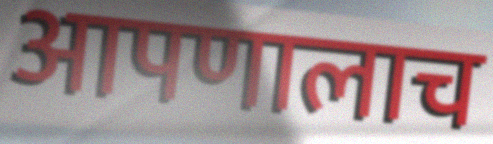
आपणालाच